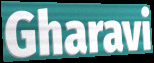
Gharavi